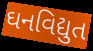
ઘનવિદ્યુત